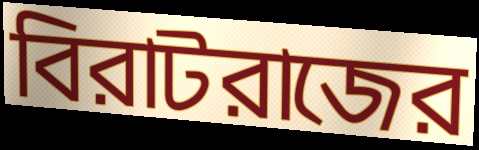
বিরাটরাজের